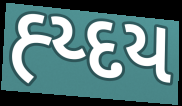
હ્ય્દય